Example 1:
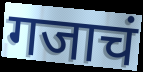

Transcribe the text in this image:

गजाचं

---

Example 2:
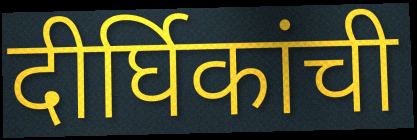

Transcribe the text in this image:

दीर्घिकांची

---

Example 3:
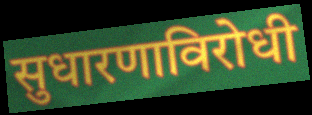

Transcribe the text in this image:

सुधारणाविरोधी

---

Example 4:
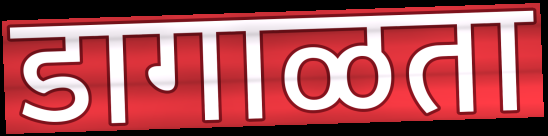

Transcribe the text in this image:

डागाळता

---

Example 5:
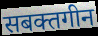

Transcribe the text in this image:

सबक्तगीन